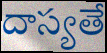
దాస్యతే